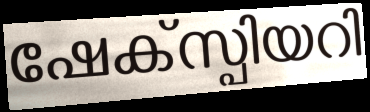
ഷേക്സ്പിയറി